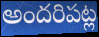
అందరిపట్ల